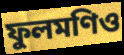
ফুলমণিও